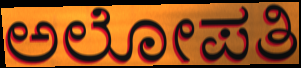
ಅಲೋಪತಿ